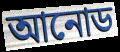
আনোড